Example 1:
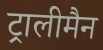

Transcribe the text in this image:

ट्रालीमैन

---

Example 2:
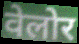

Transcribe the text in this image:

वेलोर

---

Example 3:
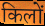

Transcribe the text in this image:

किलों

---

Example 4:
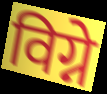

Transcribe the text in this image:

विग्ने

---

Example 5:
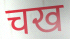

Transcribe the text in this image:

चख